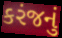
કરંજનું